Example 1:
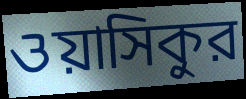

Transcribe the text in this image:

ওয়াসিকুর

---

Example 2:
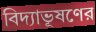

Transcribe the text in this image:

বিদ্যাভূষণের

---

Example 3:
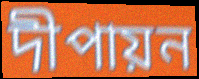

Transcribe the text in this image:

দীপায়ন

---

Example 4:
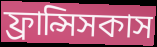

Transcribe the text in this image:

ফ্রান্সিসকাস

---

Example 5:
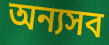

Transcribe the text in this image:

অন্যসব